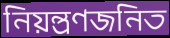
নিয়ন্ত্রণজনিত